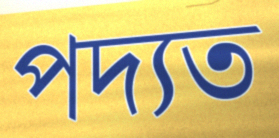
পদ্যত